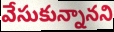
వేసుకున్నానని